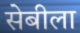
सेबीला